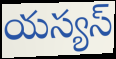
యస్యస్